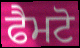
ਫੈਮਟੋ